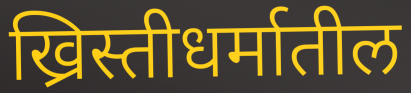
ख्रिस्तीधर्मातील